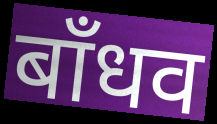
बाँधव